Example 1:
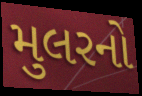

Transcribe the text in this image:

મુલરનો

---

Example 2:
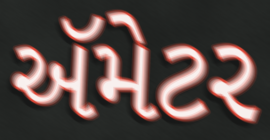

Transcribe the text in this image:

ઍમેટર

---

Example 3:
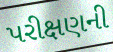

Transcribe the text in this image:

પરીક્ષણની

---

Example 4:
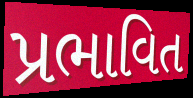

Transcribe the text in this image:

પ્રભાવિત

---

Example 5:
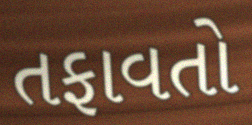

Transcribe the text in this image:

તફાવતો